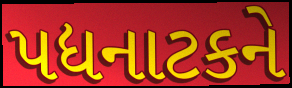
પદ્યનાટકને